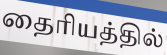
தைரியத்தில்